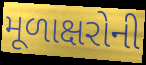
મૂળાક્ષરોની